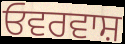
ਓਵਰਵਾਸ਼